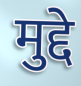
मुद्दे